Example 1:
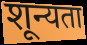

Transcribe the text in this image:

शून्‍यता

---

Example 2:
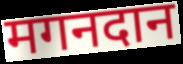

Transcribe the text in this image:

मगनदान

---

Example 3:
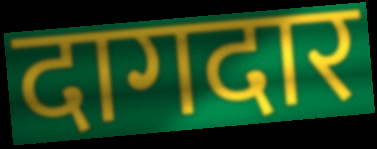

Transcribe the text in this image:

दागदार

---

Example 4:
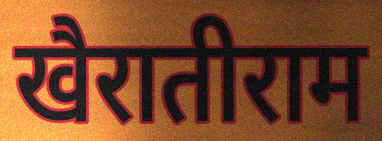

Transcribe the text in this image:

खैरातीराम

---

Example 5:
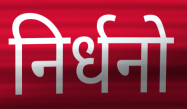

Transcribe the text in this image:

निर्धनो